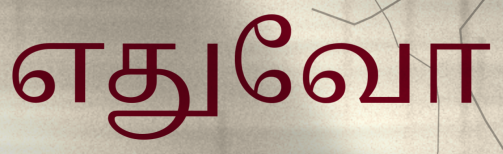
எதுவோ